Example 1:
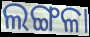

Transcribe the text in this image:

ଲଙ୍ଗଳା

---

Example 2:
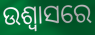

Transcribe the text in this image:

ଉଶ୍ଵାସରେ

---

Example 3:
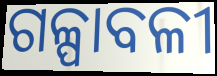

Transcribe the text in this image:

ଗଳ୍ପାବଳୀ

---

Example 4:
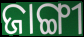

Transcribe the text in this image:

ଜାଙ୍ଗୀ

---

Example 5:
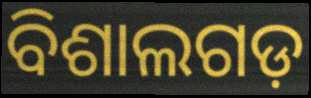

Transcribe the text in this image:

ବିଶାଲଗଡ଼